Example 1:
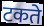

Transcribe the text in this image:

टकते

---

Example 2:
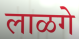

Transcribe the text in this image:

लाळगे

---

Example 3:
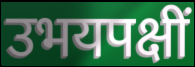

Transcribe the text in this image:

उभयपक्षीं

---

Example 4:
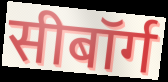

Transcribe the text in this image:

सीबॉर्ग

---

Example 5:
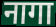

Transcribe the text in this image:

नागा